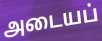
அடையப்